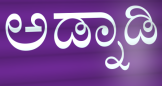
ಅಡ್ನಾಡಿ